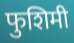
फुशिमी